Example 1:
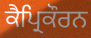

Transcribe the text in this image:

ਕੈਪ੍ਰਿਕੌਰਨ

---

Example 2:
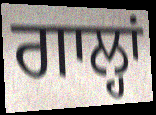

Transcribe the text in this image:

ਗਾਲ੍ਹਾਂ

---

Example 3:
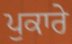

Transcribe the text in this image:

ਪੁਕਾਰੇ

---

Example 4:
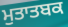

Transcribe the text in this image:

ਮੁਤਾਤਬਕ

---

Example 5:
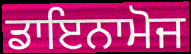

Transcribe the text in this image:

ਡਾਇਨਾਮੋਜ